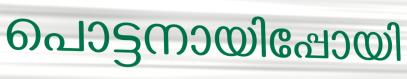
പൊട്ടനായിപ്പോയി